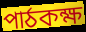
পাঠকক্ষ